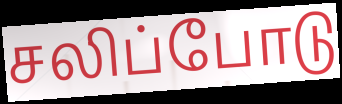
சலிப்போடு